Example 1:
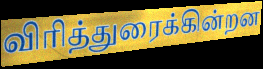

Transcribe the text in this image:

விரித்துரைக்கின்றன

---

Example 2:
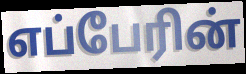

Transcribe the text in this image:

எப்பேரின்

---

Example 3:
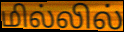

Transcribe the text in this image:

மில்லில்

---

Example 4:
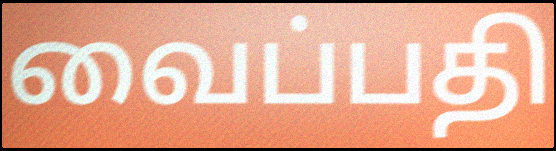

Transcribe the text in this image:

வைப்பதி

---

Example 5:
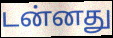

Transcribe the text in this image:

டன்னது